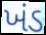
ખંડ